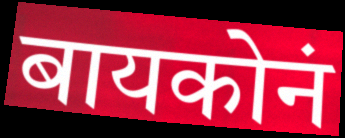
बायकोनं